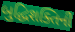
બુદ્ધિશક્તિની